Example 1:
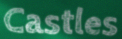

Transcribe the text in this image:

Castles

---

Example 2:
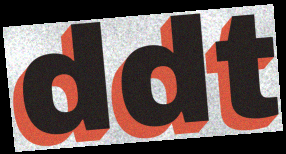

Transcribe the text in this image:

ddt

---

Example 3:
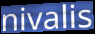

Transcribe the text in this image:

nivalis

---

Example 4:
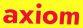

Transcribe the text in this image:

axiom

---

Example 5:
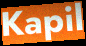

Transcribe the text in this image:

Kapil